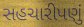
સહચારીપણું